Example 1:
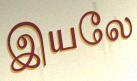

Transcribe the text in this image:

இயலே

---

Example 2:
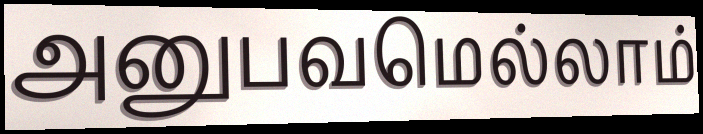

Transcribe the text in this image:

அனுபவமெல்லாம்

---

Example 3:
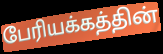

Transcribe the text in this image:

பேரியக்கத்தின்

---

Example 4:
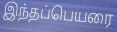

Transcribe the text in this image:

இந்தப்பெயரை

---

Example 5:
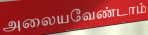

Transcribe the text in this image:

அலையவேண்டாம்